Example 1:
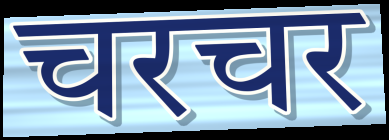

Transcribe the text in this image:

चरचर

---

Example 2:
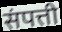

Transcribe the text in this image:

संपत्ती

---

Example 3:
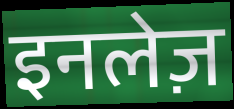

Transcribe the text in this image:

इनलेज़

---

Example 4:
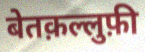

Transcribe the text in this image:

बेतक़ल्लुफ़ी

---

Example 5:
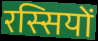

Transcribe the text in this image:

रस्सियों